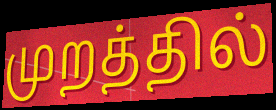
முறத்தில்